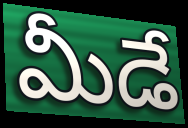
మీడే